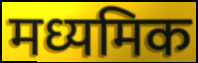
मध्यमिक